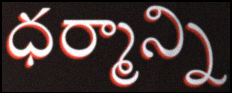
ధర్మాన్ని